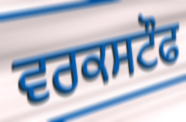
ਵਰਕਸਟੌਫ